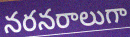
నరనరాలుగా